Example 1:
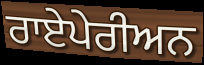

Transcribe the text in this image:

ਰਾਏਪੇਰੀਅਨ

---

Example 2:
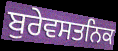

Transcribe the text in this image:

ਬੁਰੇਵਸਤਨਿਕ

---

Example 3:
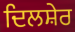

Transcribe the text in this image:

ਦਿਲਸ਼ੇਰ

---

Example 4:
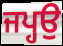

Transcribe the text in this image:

ਜਪ੍ਹਉ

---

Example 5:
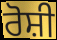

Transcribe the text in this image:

ਰੋਸ਼ੀ